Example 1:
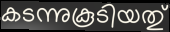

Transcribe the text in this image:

കടന്നുകൂടിയതു്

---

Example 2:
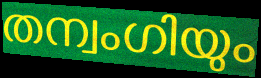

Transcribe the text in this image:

തന്വംഗിയും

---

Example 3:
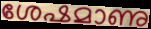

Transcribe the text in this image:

ശേഷമാണു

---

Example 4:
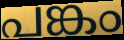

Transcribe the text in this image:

പങ്കം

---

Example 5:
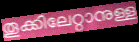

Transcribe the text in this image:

തൂക്കിലേറ്റാനുള്ള